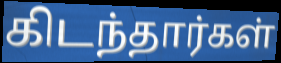
கிடந்தார்கள்